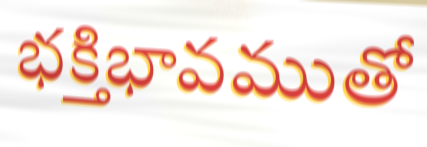
భక్తిభావముతో